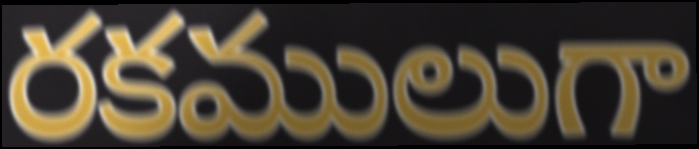
రకములుగా